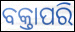
ବକ୍ତାପରି